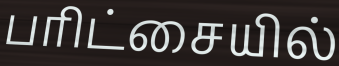
பரிட்சையில்